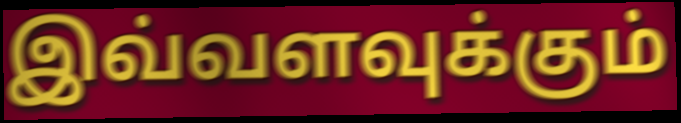
இவ்வளவுக்கும்